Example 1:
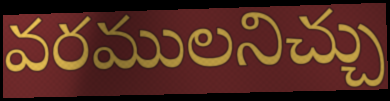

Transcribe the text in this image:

వరములనిచ్చు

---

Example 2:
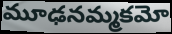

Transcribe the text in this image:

మూఢనమ్మకమో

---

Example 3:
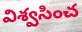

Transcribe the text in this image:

విశ్వసించ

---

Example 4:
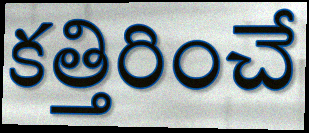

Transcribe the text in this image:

కత్తిరించే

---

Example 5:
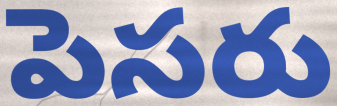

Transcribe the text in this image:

పెసరు